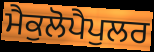
ਮੈਕੁਲੋਪੈਪੁਲਰ